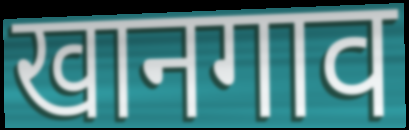
खानगाव